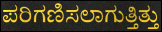
ಪರಿಗಣಿಸಲಾಗುತ್ತಿತ್ತು